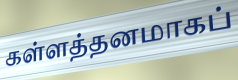
கள்ளத்தனமாகப்